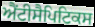
ਐਂਟੀਸੈਪਿਟਿਕਸ